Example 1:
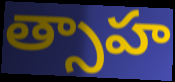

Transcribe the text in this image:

త్సాహ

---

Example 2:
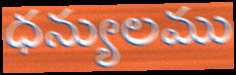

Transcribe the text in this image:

ధన్యులము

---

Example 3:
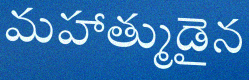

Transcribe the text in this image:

మహాత్ముడైన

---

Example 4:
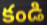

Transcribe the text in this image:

కండి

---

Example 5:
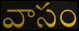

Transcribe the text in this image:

వాసం